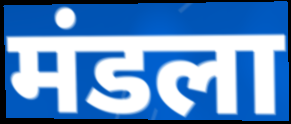
मंडला